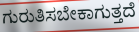
ಗುರುತಿಸಬೇಕಾಗುತ್ತದೆ